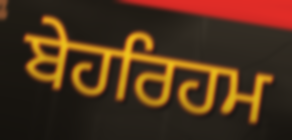
ਬੇਹਰਿਹਮ